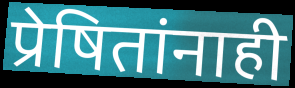
प्रेषितांनाही